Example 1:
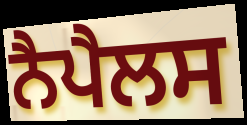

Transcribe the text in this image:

ਨੈਪੈਲਸ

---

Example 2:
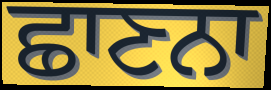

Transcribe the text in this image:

ਛਾਣਨਾ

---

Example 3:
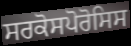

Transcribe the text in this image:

ਸਰਕੋਸਪੋਰੋਸਿਸ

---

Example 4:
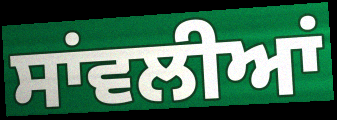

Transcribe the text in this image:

ਸਾਂਵਲੀਆਂ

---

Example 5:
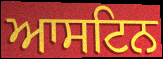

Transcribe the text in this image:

ਆਸਟਿਨ